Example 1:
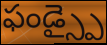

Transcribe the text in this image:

ఫండ్స్పై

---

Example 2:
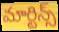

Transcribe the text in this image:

మార్టిన్స్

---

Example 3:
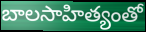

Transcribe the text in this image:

బాలసాహిత్యంతో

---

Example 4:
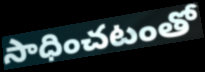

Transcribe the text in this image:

సాధించటంతో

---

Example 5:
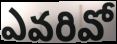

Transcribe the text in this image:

ఎవరివో